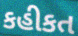
કહીકત